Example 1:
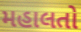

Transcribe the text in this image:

મહાલતો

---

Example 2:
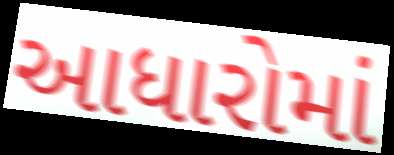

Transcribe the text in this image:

આધારોમાં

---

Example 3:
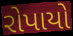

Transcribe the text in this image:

રોપાયો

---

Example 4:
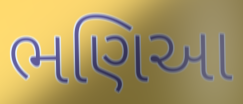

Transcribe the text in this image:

ભણિઆ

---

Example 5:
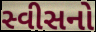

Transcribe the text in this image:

સ્વીસનો